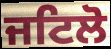
ਜਟਿਲੋ